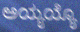
ಅಯ್ಯಯ್ಯೊ